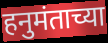
हनुमंताच्या